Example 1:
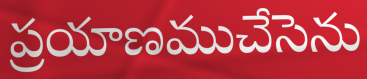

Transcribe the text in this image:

ప్రయాణముచేసెను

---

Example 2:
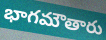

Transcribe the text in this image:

భాగమౌతారు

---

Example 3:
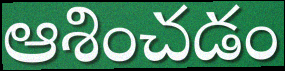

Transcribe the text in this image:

ఆశించడం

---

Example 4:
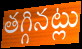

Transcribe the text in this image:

తగ్గినట్లు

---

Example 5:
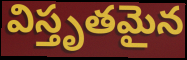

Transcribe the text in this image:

విస్తృతమైన